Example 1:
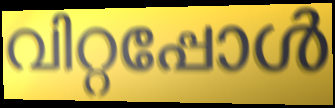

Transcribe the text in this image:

വിറ്റപ്പോൾ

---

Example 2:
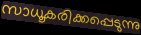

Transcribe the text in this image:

സാധൂകരിക്കപ്പെടുന്നു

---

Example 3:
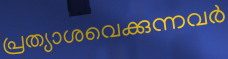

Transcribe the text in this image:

പ്രത്യാശവെക്കുന്നവർ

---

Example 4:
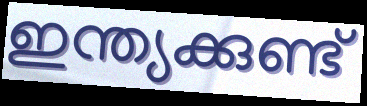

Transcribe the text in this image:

ഇന്ത്യക്കുണ്ട്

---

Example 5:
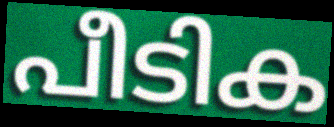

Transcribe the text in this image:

പീടിക